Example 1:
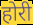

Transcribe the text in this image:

होरी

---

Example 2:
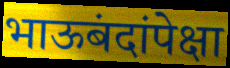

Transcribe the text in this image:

भाऊबंदांपेक्षा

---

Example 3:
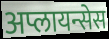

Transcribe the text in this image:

अप्लायन्सेस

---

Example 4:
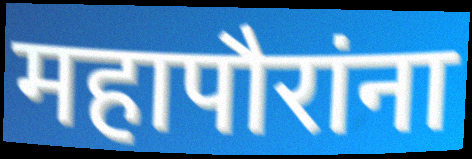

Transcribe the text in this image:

महापौरांना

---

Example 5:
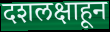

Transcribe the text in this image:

दशलक्षाहून